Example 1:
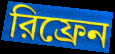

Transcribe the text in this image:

রিফ্রেন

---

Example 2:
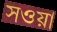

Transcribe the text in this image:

সওয়া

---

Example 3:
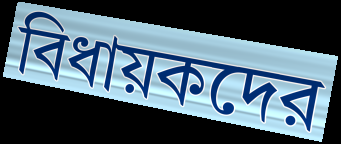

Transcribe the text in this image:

বিধায়কদের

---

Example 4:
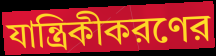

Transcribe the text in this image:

যান্ত্রিকীকরণের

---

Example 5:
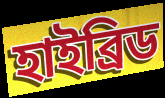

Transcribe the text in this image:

হাইব্রিড